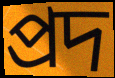
প্রদ